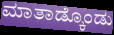
ಮಾತಾಡ್ಕೊಂಡು